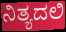
ನಿತ್ಯದಲಿ